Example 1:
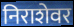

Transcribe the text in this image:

निराशेवर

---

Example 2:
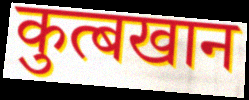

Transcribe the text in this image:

कुत्बखान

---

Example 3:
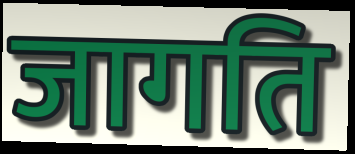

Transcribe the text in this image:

जागति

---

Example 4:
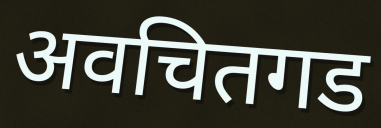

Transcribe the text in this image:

अवचितगड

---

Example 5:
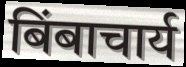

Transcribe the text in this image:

बिंबाचार्य